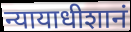
न्यायाधीशानं